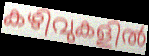
കഴിവുകളിൽ